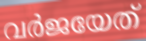
വർജയേത്